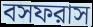
বসফরাস